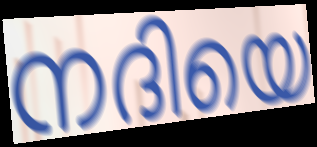
നദിയെ